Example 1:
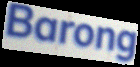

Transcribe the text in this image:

Barong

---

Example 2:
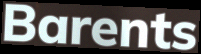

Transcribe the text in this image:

Barents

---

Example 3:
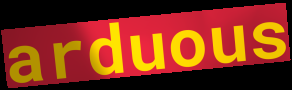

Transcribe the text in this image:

arduous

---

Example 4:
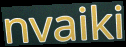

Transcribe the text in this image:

nvaiki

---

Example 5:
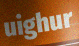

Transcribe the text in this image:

uighur